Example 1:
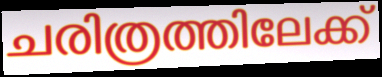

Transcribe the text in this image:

ചരിത്രത്തിലേക്ക്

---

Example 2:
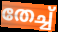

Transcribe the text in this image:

തേച്ച്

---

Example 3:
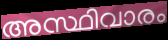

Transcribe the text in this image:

അസ്ഥിവാരം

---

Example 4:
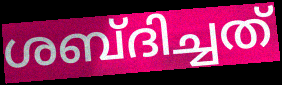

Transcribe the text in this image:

ശബ്ദിച്ചത്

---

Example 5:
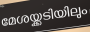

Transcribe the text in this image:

മേശയ്ക്കടിയിലും